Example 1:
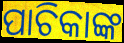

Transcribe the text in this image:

ପାଚିକାଙ୍କ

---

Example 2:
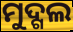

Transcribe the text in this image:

ମୁଦ୍ଗଲ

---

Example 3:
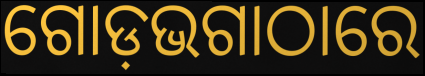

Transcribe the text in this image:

ଗୋଡ଼ଭଗାଠାରେ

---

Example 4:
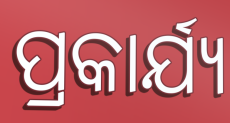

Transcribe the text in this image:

ପ୍ରକାର୍ଯ୍ୟ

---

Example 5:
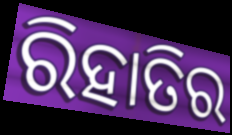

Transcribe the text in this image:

ରିହାତିର